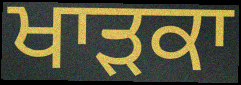
ਖਾੜਕਾ